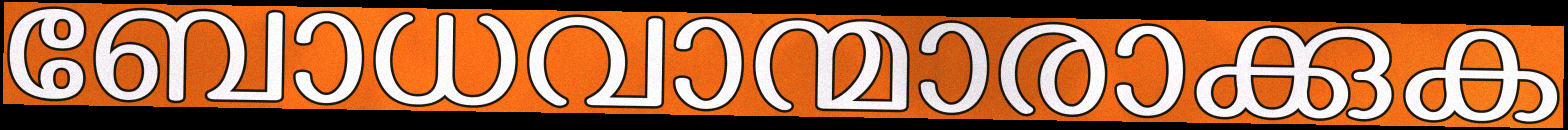
ബോധവാന്മാരാക്കുക